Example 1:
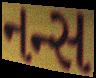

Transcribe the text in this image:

નન્સ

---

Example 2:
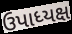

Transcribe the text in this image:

ઉપાધ્યક્ષ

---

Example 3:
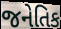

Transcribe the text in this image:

જનેતિક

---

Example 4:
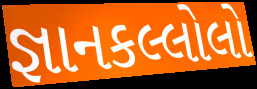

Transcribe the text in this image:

જ્ઞાનકલ્લોલો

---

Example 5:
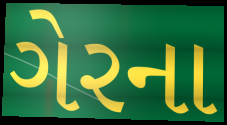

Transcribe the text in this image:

ગેરના